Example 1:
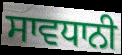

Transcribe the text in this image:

ਸਾਵਧਾਨੀ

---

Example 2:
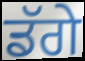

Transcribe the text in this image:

ਡੱਗੇ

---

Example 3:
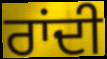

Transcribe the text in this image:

ਰਾਂਦੀ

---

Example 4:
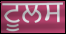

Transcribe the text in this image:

ਟੂਲਸ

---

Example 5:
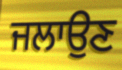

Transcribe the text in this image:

ਜਲਾਉਣ